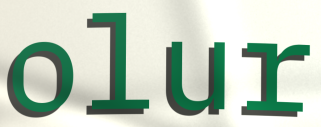
olur